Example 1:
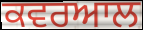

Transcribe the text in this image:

ਕਵਰਆਲ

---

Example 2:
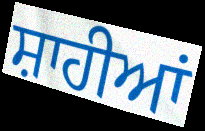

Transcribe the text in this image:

ਸ਼ਾਹੀਆਂ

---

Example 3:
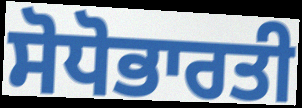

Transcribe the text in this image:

ਸੋਧੋਭਾਰਤੀ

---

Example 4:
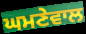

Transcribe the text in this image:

ਘਮਣੇਵਾਲ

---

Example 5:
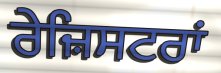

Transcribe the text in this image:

ਰੇਜ਼ਿਸਟਰਾਂ